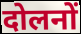
दोलनों